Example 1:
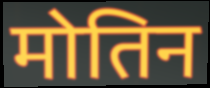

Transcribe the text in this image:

मोतिन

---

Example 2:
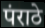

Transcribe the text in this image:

पंराठे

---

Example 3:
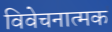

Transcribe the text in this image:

विवेचनात्मक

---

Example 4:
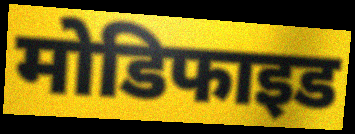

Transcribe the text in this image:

मोडिफाइड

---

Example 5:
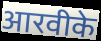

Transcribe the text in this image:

आरवीके